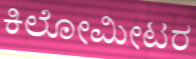
ಕಿಲೋಮೀಟರ